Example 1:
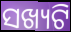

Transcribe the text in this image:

ସଖ୍ୟଟି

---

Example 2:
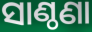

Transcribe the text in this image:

ସାଣ୍ଠଣା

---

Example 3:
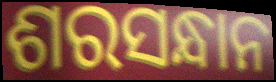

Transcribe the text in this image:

ଶରସନ୍ଧାନ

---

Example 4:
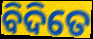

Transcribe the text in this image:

ବିଦିତେ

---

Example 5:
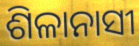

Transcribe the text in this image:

ଶିଳାନାସୀ